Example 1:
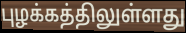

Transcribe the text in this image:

புழக்கத்திலுள்ளது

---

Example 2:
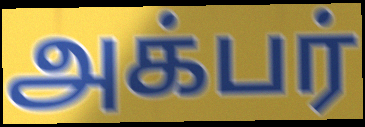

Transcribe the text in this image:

அக்பர்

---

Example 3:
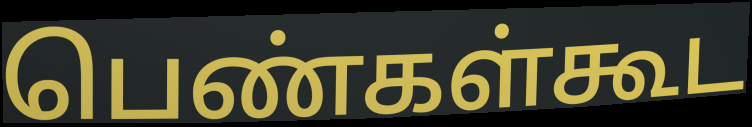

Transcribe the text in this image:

பெண்கள்கூட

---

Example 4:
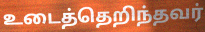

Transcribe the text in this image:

உடைத்தெறிந்தவர்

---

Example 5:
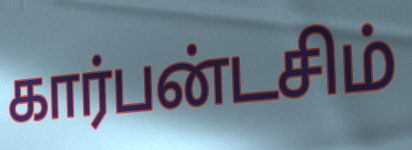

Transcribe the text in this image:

கார்பன்டசிம்